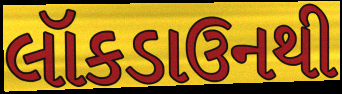
લૉકડાઉનથી